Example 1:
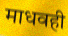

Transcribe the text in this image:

माधवही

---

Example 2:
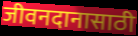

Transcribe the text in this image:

जीवनदानासाठी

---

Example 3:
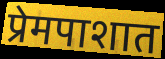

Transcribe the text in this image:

प्रेमपाशात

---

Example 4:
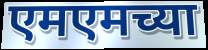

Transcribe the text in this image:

एमएमच्या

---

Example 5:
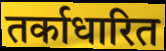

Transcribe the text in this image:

तर्काधारित